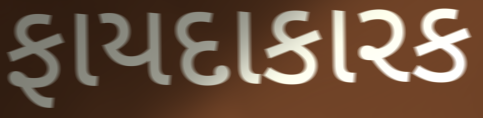
ફાયદાકારક